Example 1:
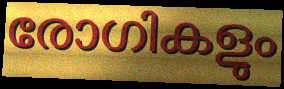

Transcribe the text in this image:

രോഗികളും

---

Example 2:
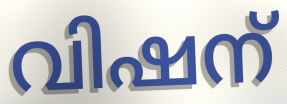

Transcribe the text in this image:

വിഷന്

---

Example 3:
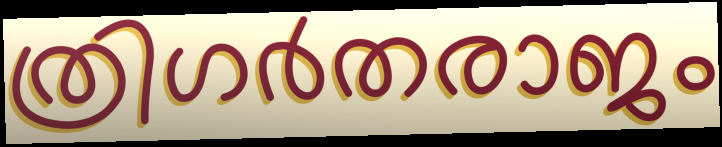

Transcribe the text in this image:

ത്രിഗർതരാജം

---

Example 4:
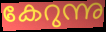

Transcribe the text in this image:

കേറുന്നു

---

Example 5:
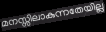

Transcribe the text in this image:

മനസ്സിലാകുന്നതേയില്ല